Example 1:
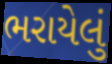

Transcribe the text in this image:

ભરાયેલું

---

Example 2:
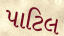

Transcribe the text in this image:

પાટિલ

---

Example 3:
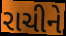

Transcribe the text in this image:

રાચીને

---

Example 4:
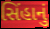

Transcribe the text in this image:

સિંહાનું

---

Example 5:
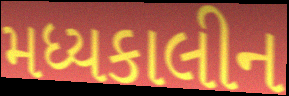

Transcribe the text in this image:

મધ્યકાલીન